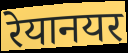
रेयानयर